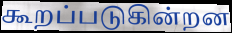
கூறப்படுகின்றன